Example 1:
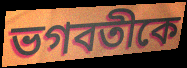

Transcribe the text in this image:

ভগবতীকে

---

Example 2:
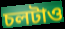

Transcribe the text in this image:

চলটাও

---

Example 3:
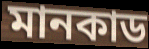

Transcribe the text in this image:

মানকাড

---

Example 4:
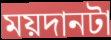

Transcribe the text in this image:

ময়দানটা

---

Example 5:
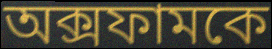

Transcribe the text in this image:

অক্সফামকে